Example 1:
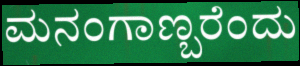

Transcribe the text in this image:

ಮನಂಗಾಣ್ಬರೆಂದು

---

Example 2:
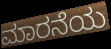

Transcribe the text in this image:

ಮಾರನೆಯ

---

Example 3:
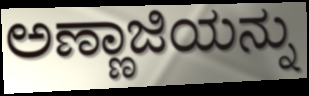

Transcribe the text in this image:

ಅಣ್ಣಾಜಿಯನ್ನು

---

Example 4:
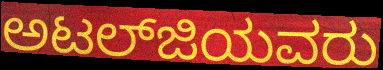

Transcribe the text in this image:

ಅಟಲ್‍ಜಿಯವರು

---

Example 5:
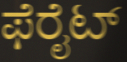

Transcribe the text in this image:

ಫೆರೈಟ್